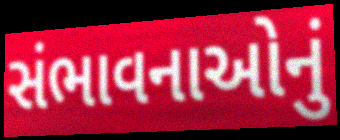
સંભાવનાઓનું